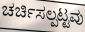
ಚರ್ಚಿಸಲ್ಪಟ್ಟವು